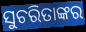
ସୁଚରିତାଙ୍କର